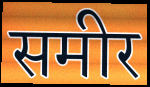
समीर